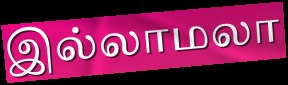
இல்லாமலா